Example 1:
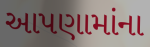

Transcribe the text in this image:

આપણામાંના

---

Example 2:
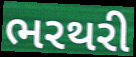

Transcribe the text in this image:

ભરથરી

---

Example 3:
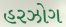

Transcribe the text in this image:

હરઝોગ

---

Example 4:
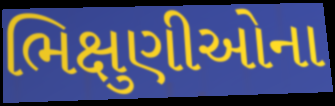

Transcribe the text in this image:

ભિક્ષુણીઓના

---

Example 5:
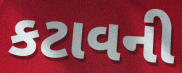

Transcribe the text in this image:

કટાવની